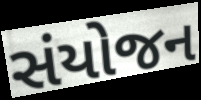
સંયોજન